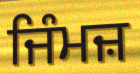
ਜਿੰਮਜ਼